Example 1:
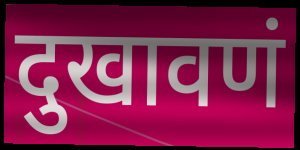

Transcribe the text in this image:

दुखावणं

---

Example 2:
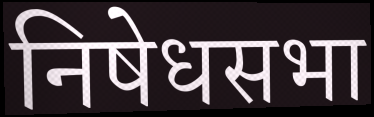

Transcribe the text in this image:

निषेधसभा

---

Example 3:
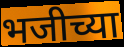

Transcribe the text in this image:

भजीच्या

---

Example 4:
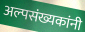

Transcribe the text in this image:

अल्पसंख्यकांनी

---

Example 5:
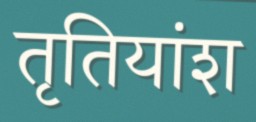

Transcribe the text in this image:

तृतियांश